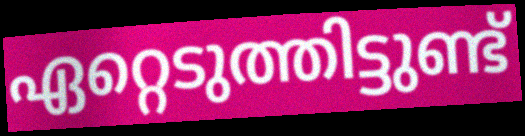
ഏറ്റെടുത്തിട്ടുണ്ട്